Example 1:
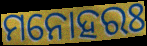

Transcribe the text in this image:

ମନୋହରଃ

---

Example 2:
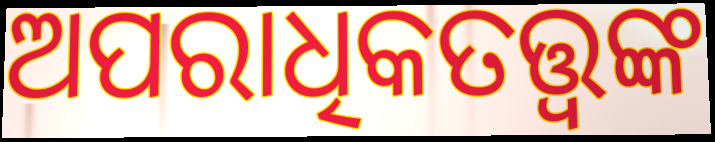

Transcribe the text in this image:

ଅପରାଧିକତତ୍ତ୍ୱଙ୍କ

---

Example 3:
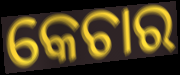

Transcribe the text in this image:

କେଚାର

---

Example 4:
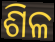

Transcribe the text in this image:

ଶିଳ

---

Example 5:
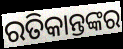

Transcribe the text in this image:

ରତିକାନ୍ତଙ୍କର